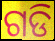
ଗଡି